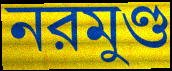
নরমুণ্ড